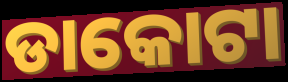
ଡାକୋଟା